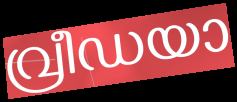
വ്രീഡയാ